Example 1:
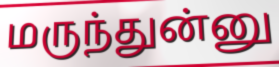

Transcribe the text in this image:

மருந்துன்னு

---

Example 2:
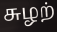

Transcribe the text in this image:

சுழற்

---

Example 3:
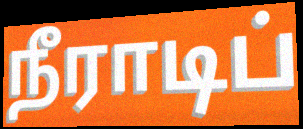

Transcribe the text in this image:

நீராடிப்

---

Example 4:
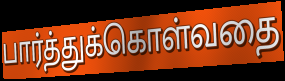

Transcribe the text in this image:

பார்த்துக்கொள்வதை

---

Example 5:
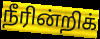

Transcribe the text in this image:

நீரின்றிக்